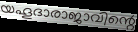
യഹൂദാരാജാവിന്റെ